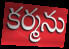
కర్మను